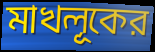
মাখলূকের